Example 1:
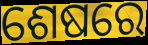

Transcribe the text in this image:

ଶେଷରେ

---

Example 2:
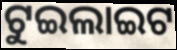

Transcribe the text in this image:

ଟୁଇଲାଇଟ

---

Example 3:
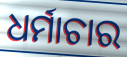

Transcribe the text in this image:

ଧର୍ମାଚାର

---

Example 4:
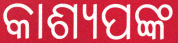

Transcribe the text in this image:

କାଶ୍ୟପଙ୍କ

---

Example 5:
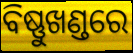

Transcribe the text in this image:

ବିଷ୍ଣୁଖଣ୍ଡରେ